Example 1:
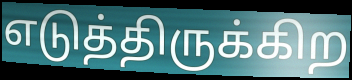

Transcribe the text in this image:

எடுத்திருக்கிற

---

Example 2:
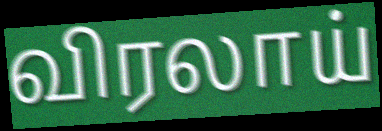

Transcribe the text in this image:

விரலாய்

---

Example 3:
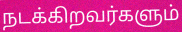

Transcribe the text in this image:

நடக்கிறவர்களும்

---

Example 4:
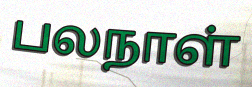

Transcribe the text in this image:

பலநாள்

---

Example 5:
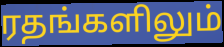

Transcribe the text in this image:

ரதங்களிலும்